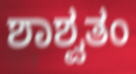
ಶಾಶ್ವತಂ